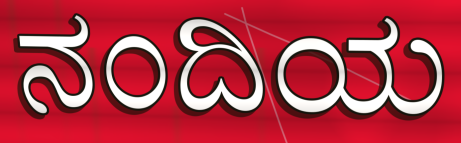
ನಂದಿಯ